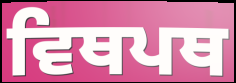
ਵਿਥਪਥ